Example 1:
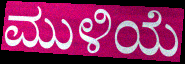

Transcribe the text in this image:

ಮುಳಿಯೆ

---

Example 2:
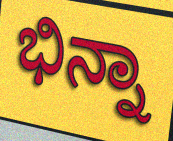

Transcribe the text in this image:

ಭಿನ್ನಾ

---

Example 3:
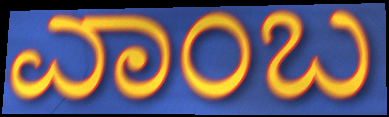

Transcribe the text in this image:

ಎಾಂಬ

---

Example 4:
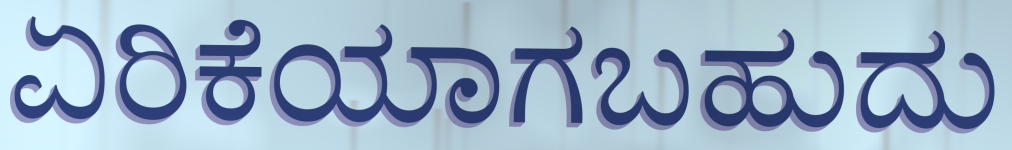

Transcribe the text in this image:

ಏರಿಕೆಯಾಗಬಹುದು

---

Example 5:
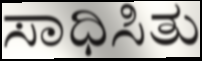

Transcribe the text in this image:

ಸಾಧಿಸಿತು